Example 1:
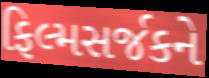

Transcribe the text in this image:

ફિલ્મસર્જકને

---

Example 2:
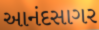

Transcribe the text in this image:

આનંદસાગર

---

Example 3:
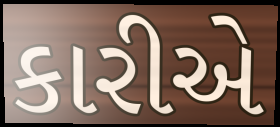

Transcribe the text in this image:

કારીએ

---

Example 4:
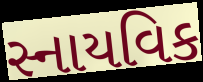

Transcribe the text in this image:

સ્નાયવિક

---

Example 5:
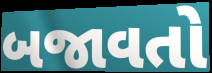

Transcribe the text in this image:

બજાવતો